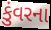
કુંવરના